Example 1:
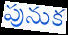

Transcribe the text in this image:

పునుక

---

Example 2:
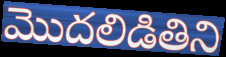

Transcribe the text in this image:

మొదలిడితిని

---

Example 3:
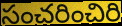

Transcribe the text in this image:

సంచరించిరి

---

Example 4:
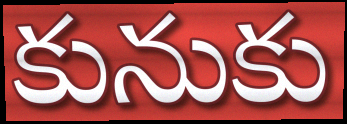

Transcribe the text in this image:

కునుకు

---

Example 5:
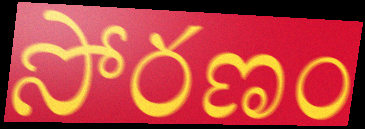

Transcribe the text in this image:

సోరణం